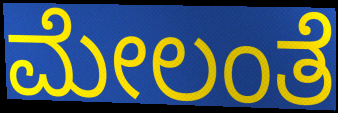
ಮೇಲಂತೆ